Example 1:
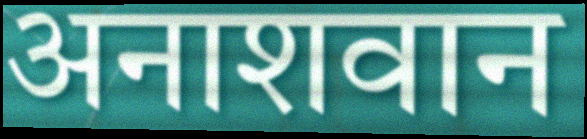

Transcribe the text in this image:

अनाशवान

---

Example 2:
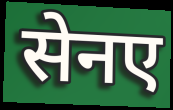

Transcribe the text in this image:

सेनए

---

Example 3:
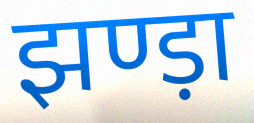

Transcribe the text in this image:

झण्ड़ा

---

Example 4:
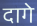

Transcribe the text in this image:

दागे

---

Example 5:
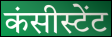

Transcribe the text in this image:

कंसीस्टेंट